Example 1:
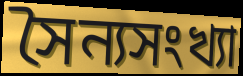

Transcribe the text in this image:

সৈন্যসংখ্যা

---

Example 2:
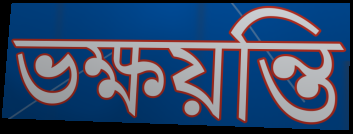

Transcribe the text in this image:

ভক্ষয়ন্তি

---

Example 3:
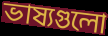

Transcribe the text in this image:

ভাষ্যগুলো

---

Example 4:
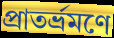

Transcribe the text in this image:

প্রাতর্ভ্রমণে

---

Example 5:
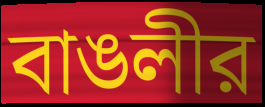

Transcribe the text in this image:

বাঙলীর